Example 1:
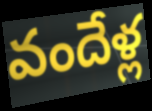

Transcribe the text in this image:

వందేళ్ల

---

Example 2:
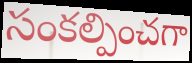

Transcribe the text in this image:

సంకల్పించగా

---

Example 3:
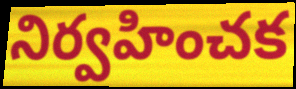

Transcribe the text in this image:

నిర్వహించక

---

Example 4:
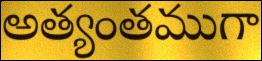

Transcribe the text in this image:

అత్యంతముగా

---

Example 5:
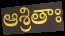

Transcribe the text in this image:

ఆశ్రితాః